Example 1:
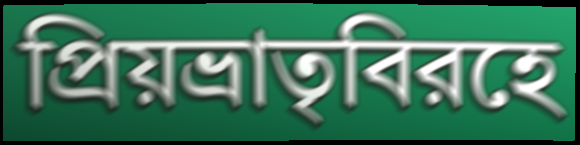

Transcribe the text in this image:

প্রিয়ভ্রাতৃবিরহে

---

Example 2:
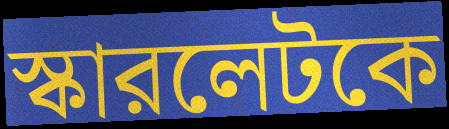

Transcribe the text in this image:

স্কারলেটকে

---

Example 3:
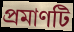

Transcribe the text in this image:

প্রমাণটি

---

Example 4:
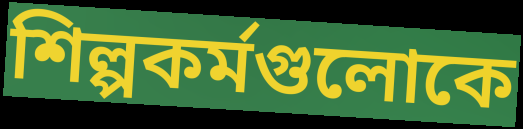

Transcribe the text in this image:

শিল্পকর্মগুলোকে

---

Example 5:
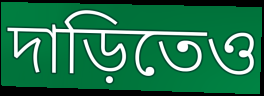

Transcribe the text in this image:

দাড়িতেও